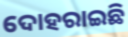
ଦୋହରାଇଛି